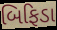
બિફિડા